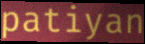
patiyan